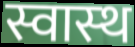
स्‍वास्‍थ